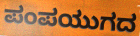
ಪಂಪಯುಗದ